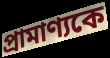
প্রামাণ্যকে